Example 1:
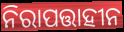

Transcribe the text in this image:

ନିରାପତ୍ତାହୀନ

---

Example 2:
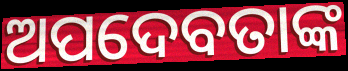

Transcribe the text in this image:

ଅପଦେବତାଙ୍କ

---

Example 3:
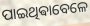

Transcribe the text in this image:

ପାଇଥିଵାବେଳେ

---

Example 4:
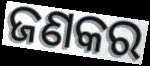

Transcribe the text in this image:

ଜଣକର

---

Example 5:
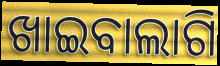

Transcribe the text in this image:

ଖାଇବାଲାଗି